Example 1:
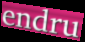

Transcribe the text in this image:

endru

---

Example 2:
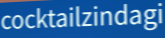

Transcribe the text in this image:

cocktailzindagi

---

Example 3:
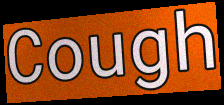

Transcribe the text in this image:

Cough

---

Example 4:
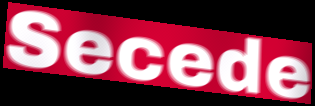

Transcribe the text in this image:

Secede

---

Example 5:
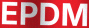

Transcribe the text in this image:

EPDM